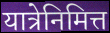
यात्रेनिमित्त